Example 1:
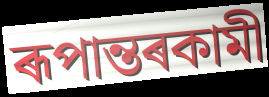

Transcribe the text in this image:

ৰূপান্তৰকামী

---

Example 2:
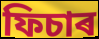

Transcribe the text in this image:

ফিচাৰ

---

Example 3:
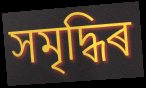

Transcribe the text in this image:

সমৃদ্ধিৰ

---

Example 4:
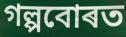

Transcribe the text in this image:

গল্পবোৰত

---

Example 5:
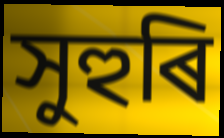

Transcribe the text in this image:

সুহুৰি